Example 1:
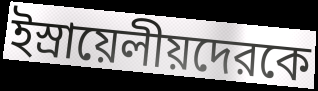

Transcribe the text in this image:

ইস্রায়েলীয়দেরকে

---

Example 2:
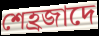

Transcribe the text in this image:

শেহ্রজাদে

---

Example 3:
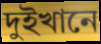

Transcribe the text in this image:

দুইখানে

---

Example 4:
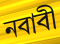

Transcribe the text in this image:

নবাবী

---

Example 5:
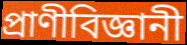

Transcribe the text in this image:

প্রাণীবিজ্ঞানী